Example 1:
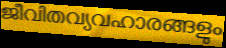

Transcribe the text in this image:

ജീവിതവ്യവഹാരങ്ങളും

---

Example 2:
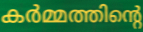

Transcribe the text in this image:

കർമ്മത്തിന്റെ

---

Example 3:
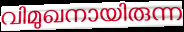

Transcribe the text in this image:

വിമുഖനായിരുന്ന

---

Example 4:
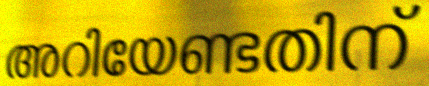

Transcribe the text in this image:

അറിയേണ്ടതിന്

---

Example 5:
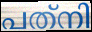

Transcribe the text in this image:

പത്‌നി